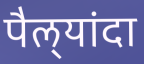
पैल्यांदा